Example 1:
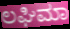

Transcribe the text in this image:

ಲಘಿಮಾ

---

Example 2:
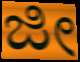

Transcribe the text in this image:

ಜೀ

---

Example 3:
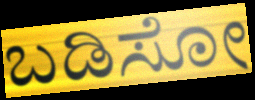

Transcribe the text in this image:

ಬಡಿಸೋ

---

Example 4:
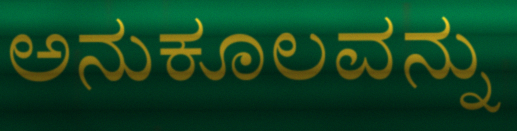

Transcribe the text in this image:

ಅನುಕೂಲವನ್ನು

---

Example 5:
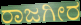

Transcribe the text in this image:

ರಾಜಗೀರ